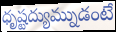
ధృష్టద్యుమ్నుడంటే